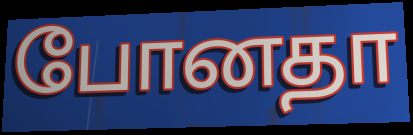
போனதா